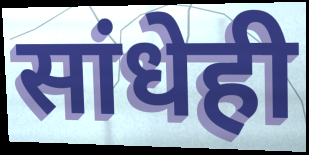
सांधेही